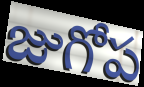
జుగోప